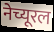
नेच्यूरल